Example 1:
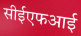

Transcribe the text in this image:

सीईएफआई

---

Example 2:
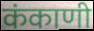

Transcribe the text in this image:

कंकाणी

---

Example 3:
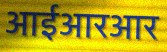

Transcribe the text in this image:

आईआरआर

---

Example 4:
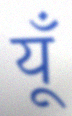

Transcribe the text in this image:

यूँ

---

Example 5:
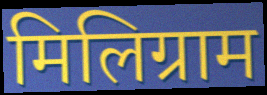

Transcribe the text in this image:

मिलिग्राम